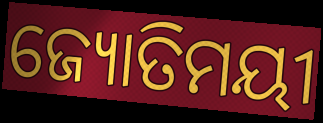
ଜ୍ୟୋତିମୟୀ